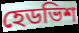
হেডভিশ